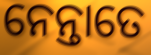
ନେନ୍ତାତେ